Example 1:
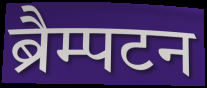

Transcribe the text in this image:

ब्रैम्पटन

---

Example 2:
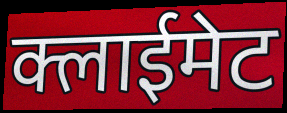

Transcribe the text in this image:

क्लाईमेट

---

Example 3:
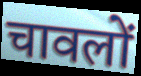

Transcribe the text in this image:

चावलों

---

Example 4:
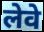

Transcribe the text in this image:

लेवे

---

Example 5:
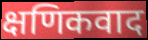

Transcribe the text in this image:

क्षणिकवाद